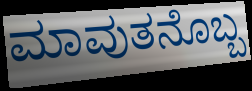
ಮಾವುತನೊಬ್ಬ